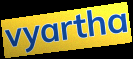
vyartha